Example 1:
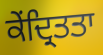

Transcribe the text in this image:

ਕੇਂਦ੍ਰਿਤਤਾ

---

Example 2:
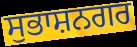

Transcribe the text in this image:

ਸੁਭਾਸ਼ਨਗਰ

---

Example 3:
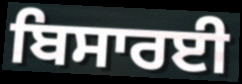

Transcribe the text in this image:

ਬਿਸਾਰਈ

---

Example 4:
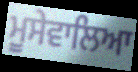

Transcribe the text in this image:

ਮੂਸੇਵਾਲਿਆ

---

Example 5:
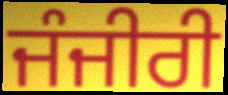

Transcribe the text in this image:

ਜੰਜੀਰੀ